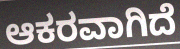
ಆಕರವಾಗಿದೆ